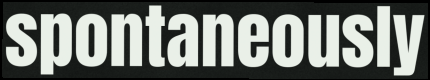
spontaneously